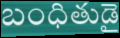
బంధితుడై